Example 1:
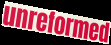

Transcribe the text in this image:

unreformed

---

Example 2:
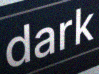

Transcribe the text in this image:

dark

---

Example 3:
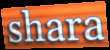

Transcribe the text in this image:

shara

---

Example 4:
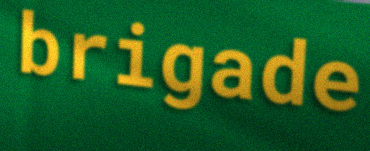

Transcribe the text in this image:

brigade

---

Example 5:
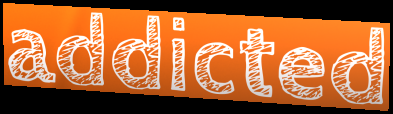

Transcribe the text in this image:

addicted